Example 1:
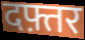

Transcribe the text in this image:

दफ़्तर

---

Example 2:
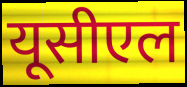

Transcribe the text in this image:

यूसीएल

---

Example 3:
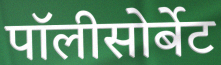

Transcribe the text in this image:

पॉलीसोर्बेट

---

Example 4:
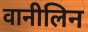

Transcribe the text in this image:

वानीलिन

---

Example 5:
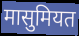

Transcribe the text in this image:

मासुमियत